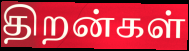
திறன்கள்